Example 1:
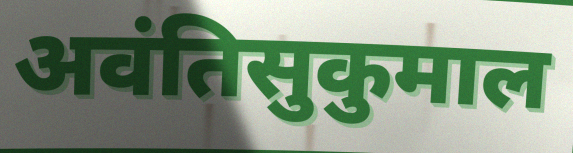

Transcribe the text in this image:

अवंतिसुकुमाल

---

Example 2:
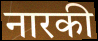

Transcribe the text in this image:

नारकी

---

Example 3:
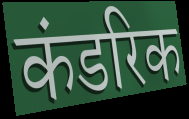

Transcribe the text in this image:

कंडरिक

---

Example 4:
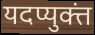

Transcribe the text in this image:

यदप्युक्तं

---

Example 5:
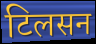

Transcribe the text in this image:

टिलसन